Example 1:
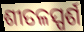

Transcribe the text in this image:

ଶୀତଳସ୍ପର୍ଶ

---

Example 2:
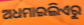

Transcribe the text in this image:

ଅଧମାଇଲିଏରୁ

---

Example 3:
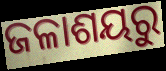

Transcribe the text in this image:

ଜଳାଶୟରୁ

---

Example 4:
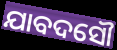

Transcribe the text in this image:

ଯାବଦସୌ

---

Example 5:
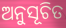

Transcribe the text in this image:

ଅନୁସୂଚିତ